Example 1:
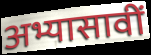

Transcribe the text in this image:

अभ्यासावीं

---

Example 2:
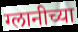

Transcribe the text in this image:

ग्लानीच्या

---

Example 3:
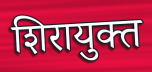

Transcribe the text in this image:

शिरायुक्त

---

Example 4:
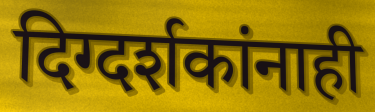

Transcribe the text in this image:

दिग्दर्शकांनाही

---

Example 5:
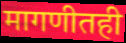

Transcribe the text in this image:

मागणीतही